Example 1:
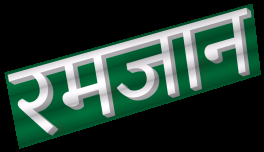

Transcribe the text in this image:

रमजान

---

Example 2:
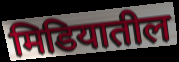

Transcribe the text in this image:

मिडियातील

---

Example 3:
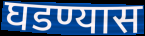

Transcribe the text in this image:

घडण्यास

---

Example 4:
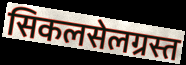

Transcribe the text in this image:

सिकलसेलग्रस्त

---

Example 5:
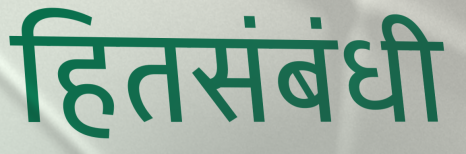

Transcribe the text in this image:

हितसंबंधी